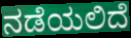
ನಡೆಯಲಿದೆ